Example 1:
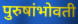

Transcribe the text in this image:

पुरुषांभोवती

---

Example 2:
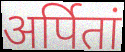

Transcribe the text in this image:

अर्पितां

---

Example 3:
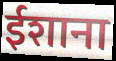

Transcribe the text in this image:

ईशाना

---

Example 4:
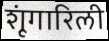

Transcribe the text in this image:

श्रृंगारिली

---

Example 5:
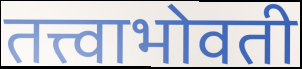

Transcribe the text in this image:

तत्त्वाभोवती